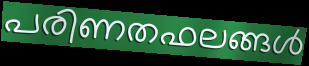
പരിണതഫലങ്ങൾ